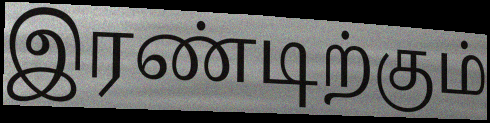
இரண்டிற்கும்